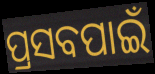
ପ୍ରସବପାଇଁ